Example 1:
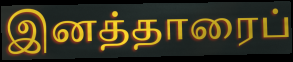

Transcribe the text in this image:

இனத்தாரைப்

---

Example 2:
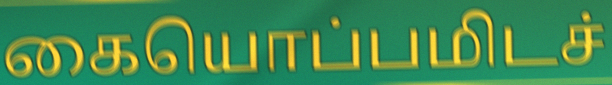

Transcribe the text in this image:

கையொப்பமிடச்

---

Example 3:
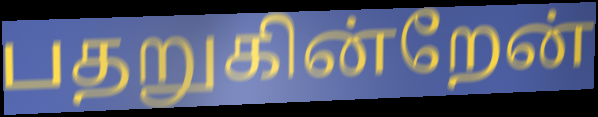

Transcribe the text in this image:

பதறுகின்றேன்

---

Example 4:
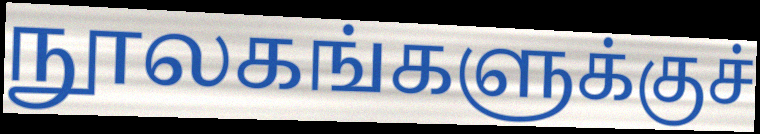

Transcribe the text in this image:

நூலகங்களுக்குச்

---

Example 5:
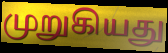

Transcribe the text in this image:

முறுகியது